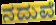
ನದುವೆ